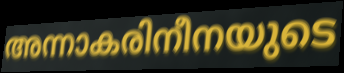
അന്നാകരിനീനയുടെ